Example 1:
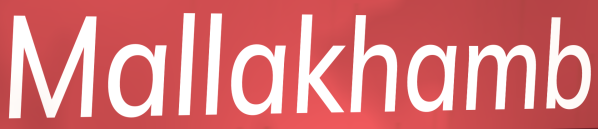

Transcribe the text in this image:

Mallakhamb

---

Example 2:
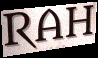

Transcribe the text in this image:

RAH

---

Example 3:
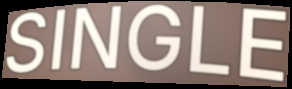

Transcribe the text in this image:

SINGLE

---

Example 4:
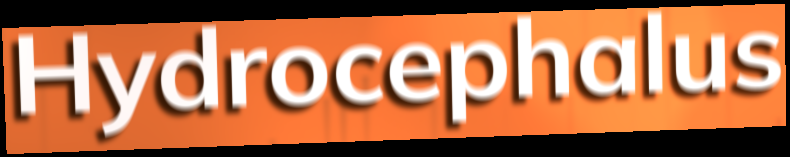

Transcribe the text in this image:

Hydrocephalus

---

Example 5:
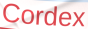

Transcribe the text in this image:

Cordex